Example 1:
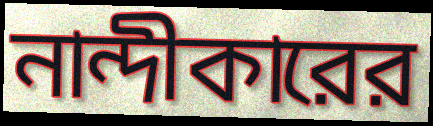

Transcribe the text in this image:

নান্দীকারের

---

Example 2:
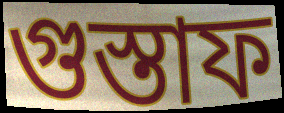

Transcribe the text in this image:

গুস্তাফ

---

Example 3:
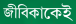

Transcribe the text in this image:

জীবিকাকেই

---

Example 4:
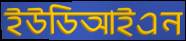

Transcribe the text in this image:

ইউডিআইএন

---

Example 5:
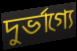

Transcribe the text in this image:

দুর্ভাগ্যে